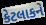
કેટલાકને